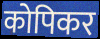
कोपिकर